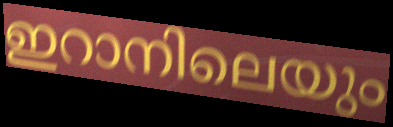
ഇറാനിലെയും